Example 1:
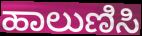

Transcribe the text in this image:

ಹಾಲುಣಿಸಿ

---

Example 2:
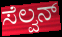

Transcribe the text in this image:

ಸೆಲ್ವನ್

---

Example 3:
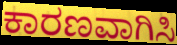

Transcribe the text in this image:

ಕಾರಣವಾಗಿಸಿ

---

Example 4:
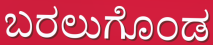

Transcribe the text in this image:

ಬರಲುಗೊಂಡ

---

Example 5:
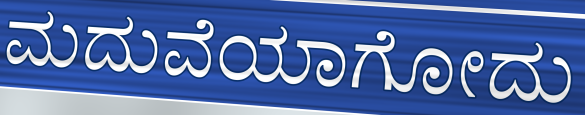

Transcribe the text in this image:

ಮದುವೆಯಾಗೋದು